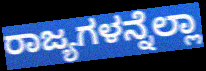
ರಾಜ್ಯಗಳನ್ನೆಲ್ಲಾ